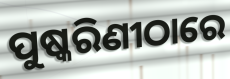
ପୁଷ୍କରିଣୀଠାରେ